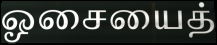
ஓசையைத்